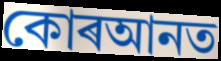
কোৰআনত